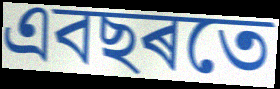
এবছৰতে